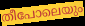
തീപോലെയും